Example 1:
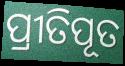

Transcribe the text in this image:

ପ୍ରୀତିପୂତ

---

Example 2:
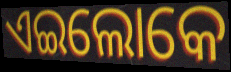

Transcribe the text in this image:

ଏଇଲୋକେ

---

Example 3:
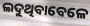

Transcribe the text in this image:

ଲଦୁଥିବାବେଳେ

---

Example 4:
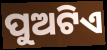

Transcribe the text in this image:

ପୁଅଟିଏ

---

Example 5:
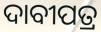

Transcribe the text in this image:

ଦାବୀପତ୍ର